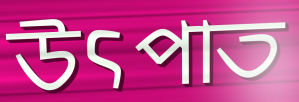
উৎপাত